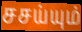
சசய்யும்